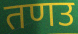
तणउ